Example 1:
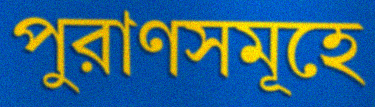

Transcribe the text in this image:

পুরাণসমূহে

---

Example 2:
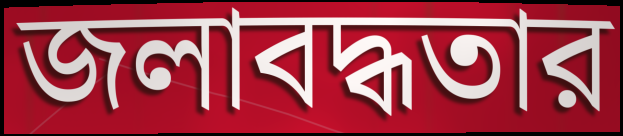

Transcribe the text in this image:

জলাবদ্ধতার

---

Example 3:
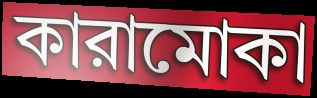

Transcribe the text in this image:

কারামোকা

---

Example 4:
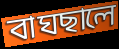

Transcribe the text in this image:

বাঘছালে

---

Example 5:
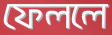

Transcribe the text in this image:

ফেললে